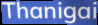
Thanigai